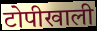
टोपीखाली